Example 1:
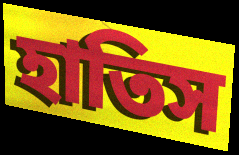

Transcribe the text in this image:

হাতিস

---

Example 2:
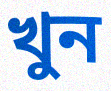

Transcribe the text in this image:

খুন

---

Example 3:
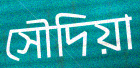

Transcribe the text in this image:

সৌদিয়া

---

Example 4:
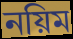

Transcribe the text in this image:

নয়িম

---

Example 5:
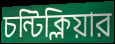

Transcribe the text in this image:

চন্টিক্লিয়ার